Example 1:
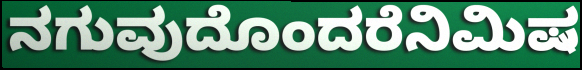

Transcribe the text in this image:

ನಗುವುದೊಂದರೆನಿಮಿಷ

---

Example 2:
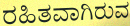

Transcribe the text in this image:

ರಹಿತವಾಗಿರುವ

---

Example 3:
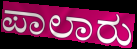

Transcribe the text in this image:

ಪಾಲಾರು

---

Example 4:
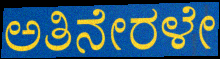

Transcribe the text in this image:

ಅತಿನೇರಳೇ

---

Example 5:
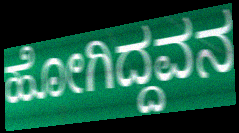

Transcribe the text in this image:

ಹೋಗಿದ್ದವನ